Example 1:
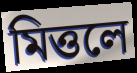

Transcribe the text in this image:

মিত্তলে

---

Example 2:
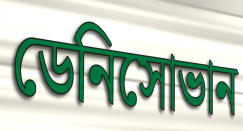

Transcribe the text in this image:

ডেনিসোভান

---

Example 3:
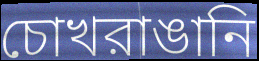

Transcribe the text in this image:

চোখরাঙানি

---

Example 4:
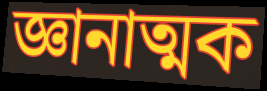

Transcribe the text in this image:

জ্ঞানাত্মক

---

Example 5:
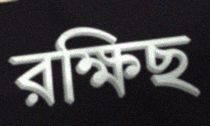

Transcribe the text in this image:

রক্ষিছ